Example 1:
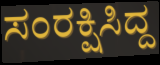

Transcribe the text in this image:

ಸಂರಕ್ಷಿಸಿದ್ದ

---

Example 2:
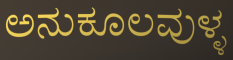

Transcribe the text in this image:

ಅನುಕೂಲವುಳ್ಳ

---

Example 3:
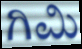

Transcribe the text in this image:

ಗಿಮಿ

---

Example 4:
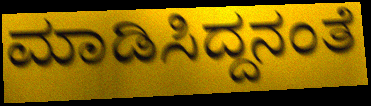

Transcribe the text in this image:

ಮಾಡಿಸಿದ್ದನಂತೆ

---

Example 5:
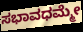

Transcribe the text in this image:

ಸಭಾವಧಮ್ಮೇ